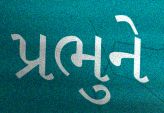
પ્રભુને